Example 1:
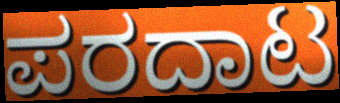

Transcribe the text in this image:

ಪರದಾಟ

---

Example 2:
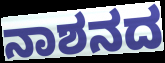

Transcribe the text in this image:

ನಾಶನದ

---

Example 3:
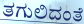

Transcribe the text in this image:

ತಗುಲಿದಂತೆ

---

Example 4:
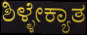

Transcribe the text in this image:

ಶಿಳ್ಳೇಕ್ಯಾತ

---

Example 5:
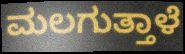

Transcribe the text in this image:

ಮಲಗುತ್ತಾಳೆ